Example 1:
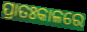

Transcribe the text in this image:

ପ୍ରାତଃକାଳରେ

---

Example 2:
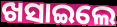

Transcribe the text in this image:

ଖସାଇଲେ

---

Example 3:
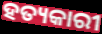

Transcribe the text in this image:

ହତ୍ୟକାରୀ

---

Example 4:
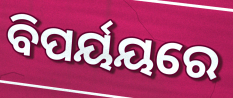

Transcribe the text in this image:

ବିପର୍ୟୟରେ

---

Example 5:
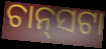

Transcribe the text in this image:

ଚାନ୍‌ସଟା